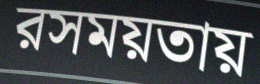
রসময়তায়